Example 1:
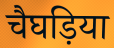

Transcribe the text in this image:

चैघड़िया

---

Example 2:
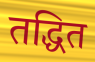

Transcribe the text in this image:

तद्धित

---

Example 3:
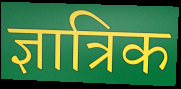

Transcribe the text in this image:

ज्ञात्रिक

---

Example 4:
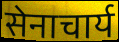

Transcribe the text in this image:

सेनाचार्य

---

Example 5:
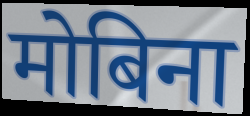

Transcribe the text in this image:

मोबिना